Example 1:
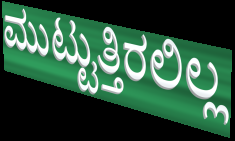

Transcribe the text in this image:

ಮುಟ್ಟುತ್ತಿರಲಿಲ್ಲ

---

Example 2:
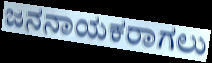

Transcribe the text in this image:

ಜನನಾಯಕರಾಗಲು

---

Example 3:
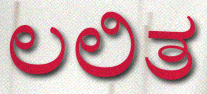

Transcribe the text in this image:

ಲಲಿತ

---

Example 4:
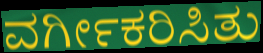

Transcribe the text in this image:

ವರ್ಗೀಕರಿಸಿತು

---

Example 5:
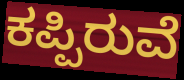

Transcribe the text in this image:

ಕಪ್ಪಿರುವೆ